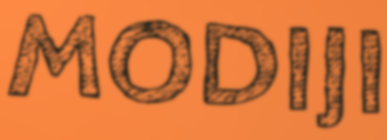
MODIJI